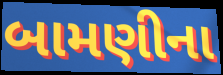
બામણીના